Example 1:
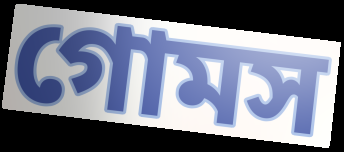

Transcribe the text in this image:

গোমস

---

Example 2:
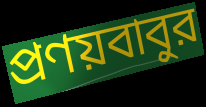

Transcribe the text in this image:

প্রণয়বাবুর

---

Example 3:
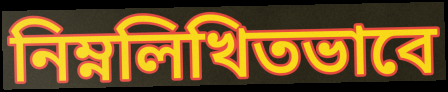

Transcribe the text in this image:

নিম্নলিখিতভাবে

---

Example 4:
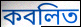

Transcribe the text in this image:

কবলিত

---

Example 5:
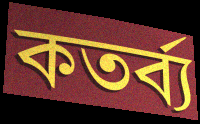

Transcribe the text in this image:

কতর্ব্য